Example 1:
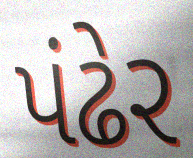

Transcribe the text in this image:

પંઢેર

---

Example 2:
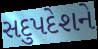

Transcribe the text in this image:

સદુપદેશને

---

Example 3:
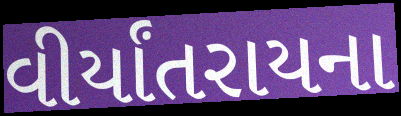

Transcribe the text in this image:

વીર્યાંતરાયના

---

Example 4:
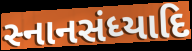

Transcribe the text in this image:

સ્નાનસંધ્યાદિ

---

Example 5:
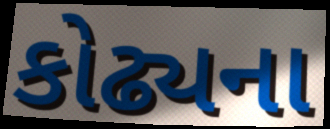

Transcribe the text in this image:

કોઢ્યના